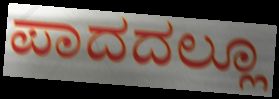
ಪಾದದಲ್ಲೂ